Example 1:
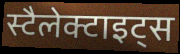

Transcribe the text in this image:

स्टैलेक्टाइट्स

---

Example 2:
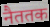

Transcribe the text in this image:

नैततक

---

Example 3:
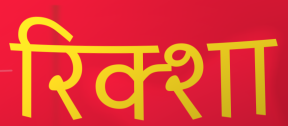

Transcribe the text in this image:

रिक्‍शा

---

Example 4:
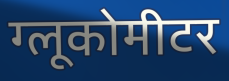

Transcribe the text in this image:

ग्लूकोमीटर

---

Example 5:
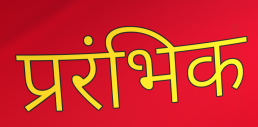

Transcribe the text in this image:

प्ररंभिक